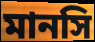
মানসি